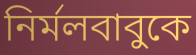
নির্মলবাবুকে